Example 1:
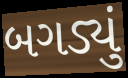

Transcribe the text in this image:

બગડ્યું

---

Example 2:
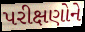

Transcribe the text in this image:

પરીક્ષણોને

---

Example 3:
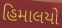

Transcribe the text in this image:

હિમાલયો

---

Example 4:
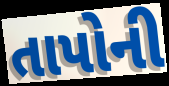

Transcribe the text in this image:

તાપોની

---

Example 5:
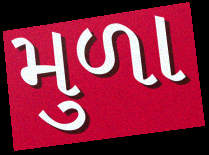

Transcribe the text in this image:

મુળા